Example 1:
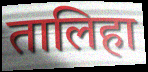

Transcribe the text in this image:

तालिहा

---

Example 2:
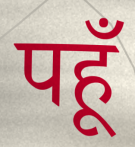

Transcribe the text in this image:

पहूँ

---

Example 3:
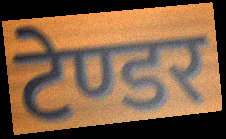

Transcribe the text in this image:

टेण्‍डर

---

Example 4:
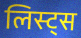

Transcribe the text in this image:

लिस्ट्स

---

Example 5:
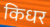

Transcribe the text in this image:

किधर